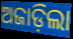
ଅଜାଡ଼ିଲା